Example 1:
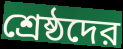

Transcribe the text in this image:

শ্রেষ্ঠদের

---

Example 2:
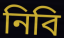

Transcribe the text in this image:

নিবি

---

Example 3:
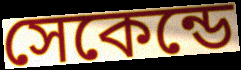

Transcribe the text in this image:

সেকেন্ডে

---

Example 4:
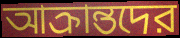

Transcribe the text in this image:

আক্রান্তদের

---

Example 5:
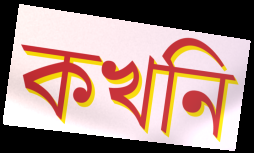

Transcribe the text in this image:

কখনি